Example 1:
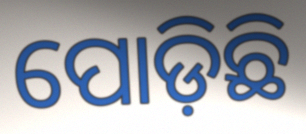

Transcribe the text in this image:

ପୋଡ଼ିଛି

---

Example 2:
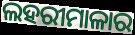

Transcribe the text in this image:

ଲହରୀମାଳାର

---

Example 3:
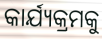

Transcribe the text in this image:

କାର୍ଯ୍ୟକ୍ରମକୁ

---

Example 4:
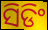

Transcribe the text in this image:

ସିଡିଂ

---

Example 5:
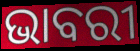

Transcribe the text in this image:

ଭାବରୀ